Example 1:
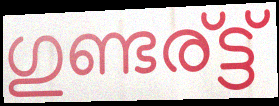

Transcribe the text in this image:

ഗുണ്ടര്ട്ട്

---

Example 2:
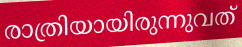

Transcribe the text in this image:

രാത്രിയായിരുന്നുവത്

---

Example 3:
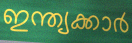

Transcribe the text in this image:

ഇന്ത്യക്കാർ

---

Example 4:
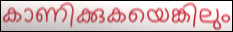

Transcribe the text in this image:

കാണിക്കുകയെങ്കിലും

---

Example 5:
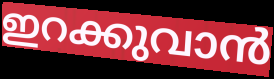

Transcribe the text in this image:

ഇറക്കുവാൻ